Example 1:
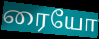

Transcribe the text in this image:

ரையோ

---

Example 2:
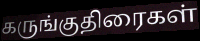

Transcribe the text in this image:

கருங்குதிரைகள்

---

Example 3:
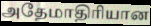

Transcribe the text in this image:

அதேமாதிரியான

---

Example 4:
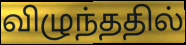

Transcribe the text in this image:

விழுந்ததில்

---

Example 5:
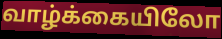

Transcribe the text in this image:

வாழ்க்கையிலோ